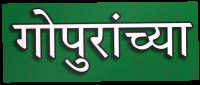
गोपुरांच्या